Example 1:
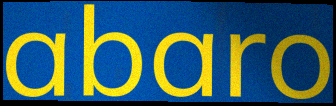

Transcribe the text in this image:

abaro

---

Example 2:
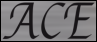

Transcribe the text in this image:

ACE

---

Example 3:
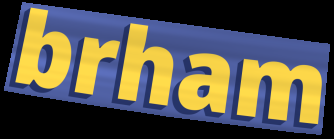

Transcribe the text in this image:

brham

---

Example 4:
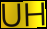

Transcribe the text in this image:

UH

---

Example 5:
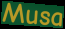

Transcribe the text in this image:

Musa